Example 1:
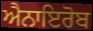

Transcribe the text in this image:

ਐਨਾਇਰੋਬ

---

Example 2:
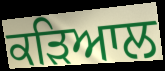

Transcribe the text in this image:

ਕੜਿਆਲ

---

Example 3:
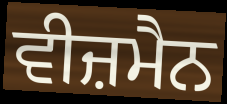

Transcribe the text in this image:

ਵੀਜ਼ਮੈਨ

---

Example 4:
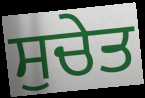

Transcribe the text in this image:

ਸੁਚੇਤ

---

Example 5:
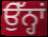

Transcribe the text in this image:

ਉੱਨ੍ਹਾਂ